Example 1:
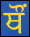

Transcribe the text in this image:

ਥੌਂ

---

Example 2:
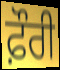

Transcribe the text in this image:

ਫ਼ੌਰੀ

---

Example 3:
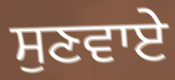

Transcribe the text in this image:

ਸੁਣਵਾਏ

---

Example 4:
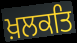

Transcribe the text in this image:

ਖ਼ਲਕਤਿ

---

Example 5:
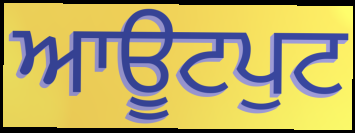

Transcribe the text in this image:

ਆਊਟਪੁਟ